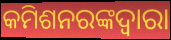
କମିଶନରଙ୍କଦ୍ୱାରା